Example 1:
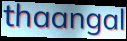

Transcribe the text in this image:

thaangal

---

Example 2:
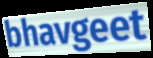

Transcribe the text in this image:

bhavgeet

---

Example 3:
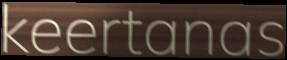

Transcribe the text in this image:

keertanas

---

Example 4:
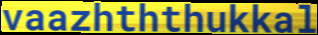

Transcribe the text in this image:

vaazhththukkal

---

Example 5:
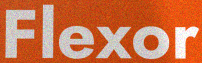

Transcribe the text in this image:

Flexor